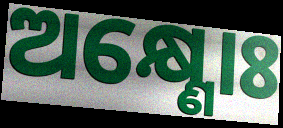
ଅକ୍ଷ୍ଣୋଃ